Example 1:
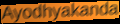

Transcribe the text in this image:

Ayodhyakanda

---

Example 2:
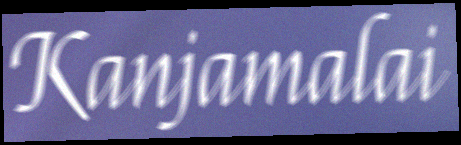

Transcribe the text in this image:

Kanjamalai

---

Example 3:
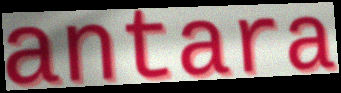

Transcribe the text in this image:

antara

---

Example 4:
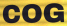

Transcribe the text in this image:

COG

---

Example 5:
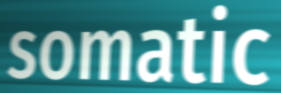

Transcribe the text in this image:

somatic